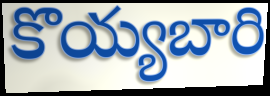
కొయ్యబారి